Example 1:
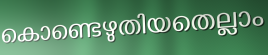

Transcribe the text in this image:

കൊണ്ടെഴുതിയതെല്ലാം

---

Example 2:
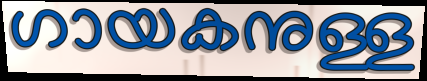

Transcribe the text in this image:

ഗായകനുള്ള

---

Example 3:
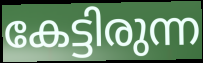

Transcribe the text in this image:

കേട്ടിരുന്ന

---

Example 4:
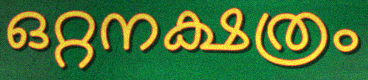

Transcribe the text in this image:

ഒറ്റനക്ഷത്രം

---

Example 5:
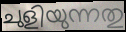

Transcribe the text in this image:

ചുളിയുന്നതു